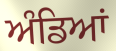
ਅੰਡਿਆਂ